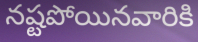
నష్టపోయినవారికి